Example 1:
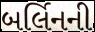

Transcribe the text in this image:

બર્લિનની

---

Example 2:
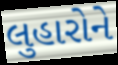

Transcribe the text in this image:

લુહારોને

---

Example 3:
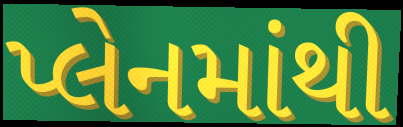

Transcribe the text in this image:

પ્લેનમાંથી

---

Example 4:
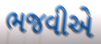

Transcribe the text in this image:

ભજવીએ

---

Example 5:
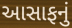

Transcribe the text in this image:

આસાફનું